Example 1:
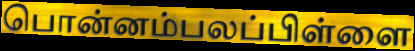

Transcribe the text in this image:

பொன்னம்பலப்பிள்ளை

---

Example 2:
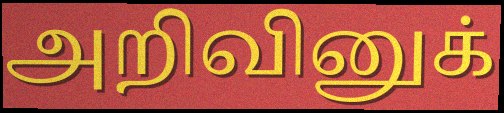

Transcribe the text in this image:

அறிவினுக்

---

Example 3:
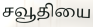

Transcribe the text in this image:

சவூதியை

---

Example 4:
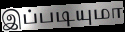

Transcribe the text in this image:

இப்படியுமா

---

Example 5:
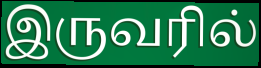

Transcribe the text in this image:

இருவரில்